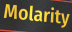
Molarity